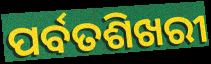
ପର୍ବତଶିଖରୀ